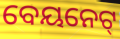
ବେୟନେଟ୍